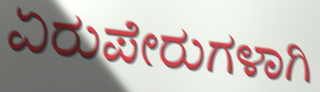
ಏರುಪೇರುಗಳಾಗಿ